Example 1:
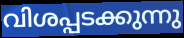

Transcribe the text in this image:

വിശപ്പടക്കുന്നു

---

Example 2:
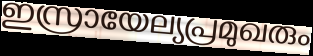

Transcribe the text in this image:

ഇസ്രായേല്യപ്രമുഖരും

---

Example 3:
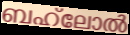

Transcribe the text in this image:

ബഹ്‌ലോൽ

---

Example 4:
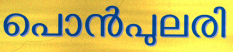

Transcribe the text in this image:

പൊൻപുലരി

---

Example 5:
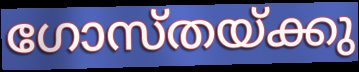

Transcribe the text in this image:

ഗോസ്തയ്ക്കു